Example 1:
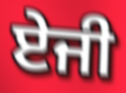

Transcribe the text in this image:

ਏਜੀ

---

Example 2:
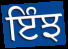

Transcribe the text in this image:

ਇੰਝ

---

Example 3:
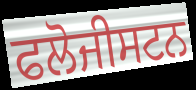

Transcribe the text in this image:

ਫਲੋਜੀਸਟਨ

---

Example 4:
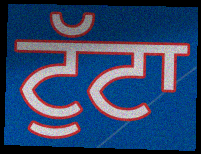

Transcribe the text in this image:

ਟੁੱਟਾ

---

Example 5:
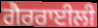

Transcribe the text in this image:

ਗੈਰਰਾਈਲੀ